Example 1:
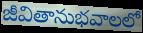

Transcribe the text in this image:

జీవితానుభవాలలో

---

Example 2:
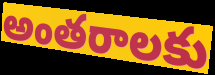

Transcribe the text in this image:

అంతరాలకు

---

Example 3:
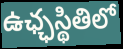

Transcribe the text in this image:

ఉఛ్ఛస్థితిలో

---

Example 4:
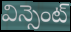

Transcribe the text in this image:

విన్సెంట్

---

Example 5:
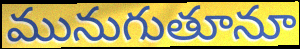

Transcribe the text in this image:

మునుగుతూనూ